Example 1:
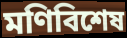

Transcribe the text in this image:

মণিবিশেষ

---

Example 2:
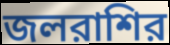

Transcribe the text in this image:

জলরাশির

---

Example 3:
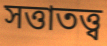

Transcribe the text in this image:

সত্তাতত্ত্ব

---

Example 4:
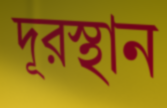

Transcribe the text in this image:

দূরস্থান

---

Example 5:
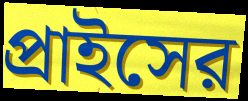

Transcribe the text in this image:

প্রাইসের